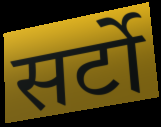
सर्टो